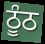
ਠੂੰਠ